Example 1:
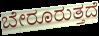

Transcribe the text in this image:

ಬೇರೂರುತ್ತದೆ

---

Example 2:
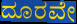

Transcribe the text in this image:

ದೂರವೇ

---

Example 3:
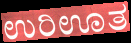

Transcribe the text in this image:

ಉರಿಊತ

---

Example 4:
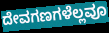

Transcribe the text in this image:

ದೇವಗಣಗಳೆಲ್ಲವೂ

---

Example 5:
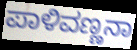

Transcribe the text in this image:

ಪಾಳಿವಣ್ಣನಾ